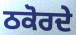
ਠਕੋਰਦੇ